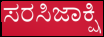
ಸರಸಿಜಾಕ್ಷಿ